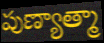
పుణ్యాత్మా